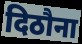
दिठौना